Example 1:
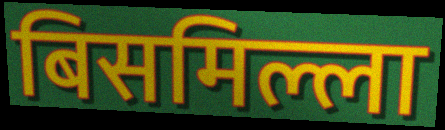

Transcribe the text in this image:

बिसमिल्ला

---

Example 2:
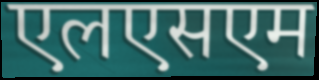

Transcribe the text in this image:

एलएसएम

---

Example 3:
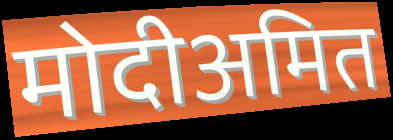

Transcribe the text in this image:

मोदीअमित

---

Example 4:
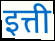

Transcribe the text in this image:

इत्ती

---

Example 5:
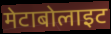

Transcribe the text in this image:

मेटाबोलाइट